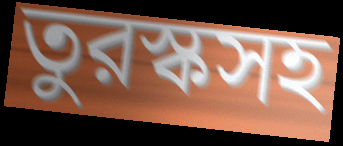
তুরস্কসহ